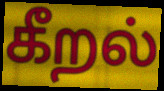
கீறல்